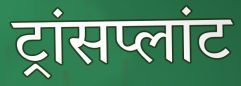
ट्रांसप्लांट